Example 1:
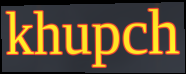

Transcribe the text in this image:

khupch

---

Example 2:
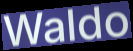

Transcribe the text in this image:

Waldo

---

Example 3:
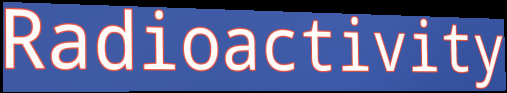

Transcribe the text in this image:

Radioactivity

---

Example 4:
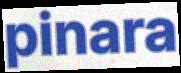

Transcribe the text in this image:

pinara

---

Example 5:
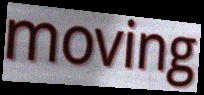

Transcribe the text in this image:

moving